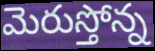
మెరుస్తోన్న